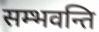
सम्भवन्ति